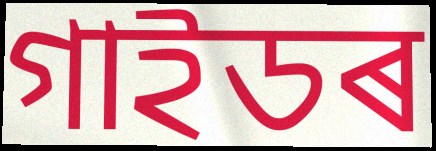
গাইডৰ